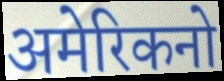
अमेरिकनो